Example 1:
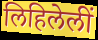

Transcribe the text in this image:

लिहिलेलीं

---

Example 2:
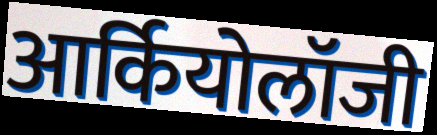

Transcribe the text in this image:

आर्कियोलॉजी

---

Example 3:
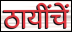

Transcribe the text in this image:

ठायींचें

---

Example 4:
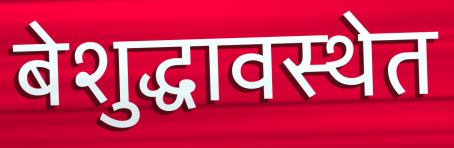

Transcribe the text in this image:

बेशुद्धावस्थेत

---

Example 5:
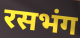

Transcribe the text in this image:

रसभंग